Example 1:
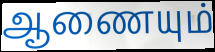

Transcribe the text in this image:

ஆணையும்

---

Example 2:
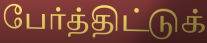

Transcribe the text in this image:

பேர்த்திட்டுக்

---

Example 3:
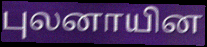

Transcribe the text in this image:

புலனாயின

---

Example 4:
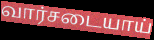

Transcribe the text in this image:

வார்சடையாய்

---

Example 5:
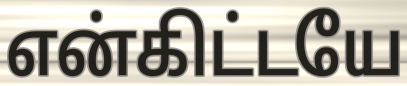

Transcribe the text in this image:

என்கிட்டயே